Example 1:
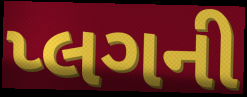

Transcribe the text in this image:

પ્લગની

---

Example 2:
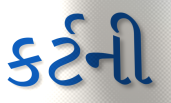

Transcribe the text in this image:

કર્ટની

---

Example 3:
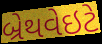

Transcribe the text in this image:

બ્રેથવેઇટે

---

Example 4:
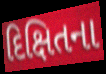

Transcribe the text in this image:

દિક્ષિતના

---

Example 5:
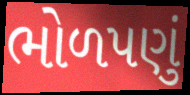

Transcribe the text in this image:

ભોળપણું